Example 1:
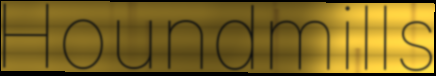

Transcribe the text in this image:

Houndmills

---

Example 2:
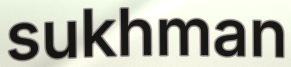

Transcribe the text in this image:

sukhman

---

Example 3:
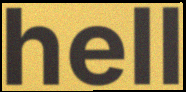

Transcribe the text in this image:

hell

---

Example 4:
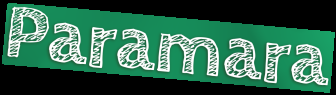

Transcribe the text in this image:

Paramara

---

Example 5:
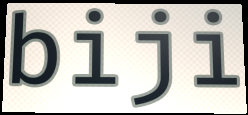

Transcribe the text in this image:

biji